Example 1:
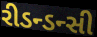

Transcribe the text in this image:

રીડન્ડન્સી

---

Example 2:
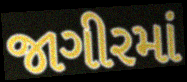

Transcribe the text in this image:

જાગીરમાં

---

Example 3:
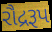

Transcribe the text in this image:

રૌદ્રરૂપ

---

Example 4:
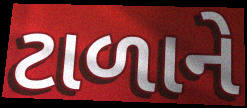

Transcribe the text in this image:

ટાળાને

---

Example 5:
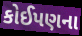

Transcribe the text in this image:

કોઈપણના